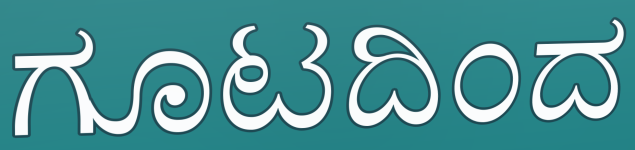
ಗೂಟದಿಂದ